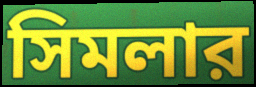
সিমলার